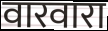
वारवारा